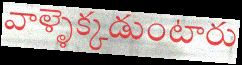
వాళ్ళెక్కడుంటారు